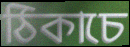
ঠিকাচে